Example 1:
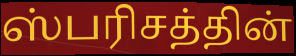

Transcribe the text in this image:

ஸ்பரிசத்தின்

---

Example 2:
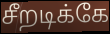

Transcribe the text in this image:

சீறடிக்கே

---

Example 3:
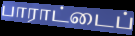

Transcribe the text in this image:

பாராட்டைப்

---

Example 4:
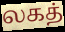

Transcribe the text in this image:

லகத்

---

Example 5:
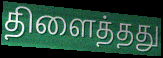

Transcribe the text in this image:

திளைத்தது